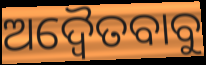
ଅଦ୍ୱୈତବାବୁ